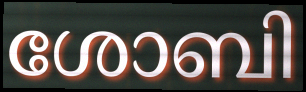
ശോബി